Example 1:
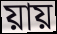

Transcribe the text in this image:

য়ায়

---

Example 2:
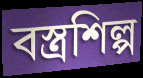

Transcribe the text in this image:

বস্ত্ৰশিল্প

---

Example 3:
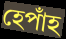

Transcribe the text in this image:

হেপাঁহ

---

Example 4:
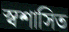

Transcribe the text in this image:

স্বশাসিত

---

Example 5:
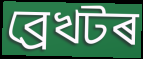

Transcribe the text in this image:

ব্ৰেখটৰ